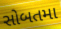
સોબતમા